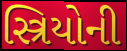
સ્ત્રિયોની